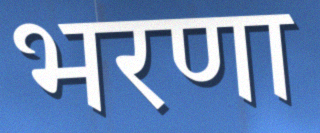
भरणा